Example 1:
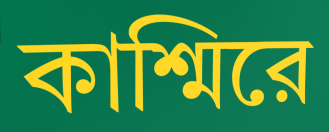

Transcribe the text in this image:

কাশ্মিরে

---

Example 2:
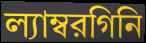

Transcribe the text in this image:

ল্যাম্বরগিনি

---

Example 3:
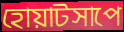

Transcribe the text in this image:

হোয়াটসাপে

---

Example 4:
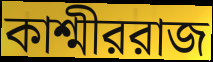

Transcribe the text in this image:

কাশ্মীররাজ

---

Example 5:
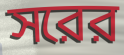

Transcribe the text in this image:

সরের